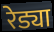
रेड्या